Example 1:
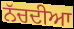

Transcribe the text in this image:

ਨੱਚਦੀਆ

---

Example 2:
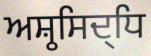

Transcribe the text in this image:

ਅਸ਼੍ਠਸਿਦ੍ਧਿ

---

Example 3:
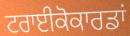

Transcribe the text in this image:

ਟਰਾਈਕੋਕਾਰਡਾਂ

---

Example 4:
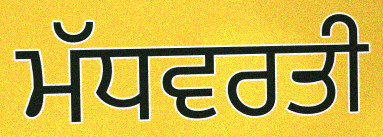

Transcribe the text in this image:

ਮੱਧਵਰਤੀ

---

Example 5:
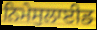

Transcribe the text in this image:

ਨਿਮੇਸੁਲਾਈਡ